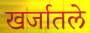
खर्जातले